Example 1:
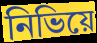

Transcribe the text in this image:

নিভিয়ে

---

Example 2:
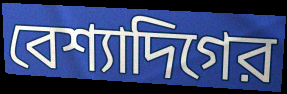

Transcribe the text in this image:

বেশ্যাদিগের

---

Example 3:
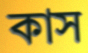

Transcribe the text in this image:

কাস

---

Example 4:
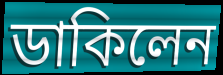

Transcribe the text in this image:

ডাকিলেন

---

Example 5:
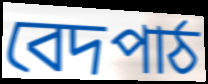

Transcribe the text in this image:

বেদপাঠ